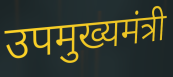
उपमुख्यमंत्री